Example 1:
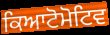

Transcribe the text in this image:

ਕਿਆਟੋਮੋਟਿਵ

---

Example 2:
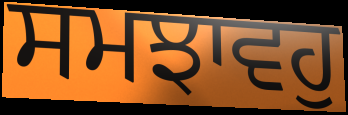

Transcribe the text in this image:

ਸਮਝਾਵਹੁ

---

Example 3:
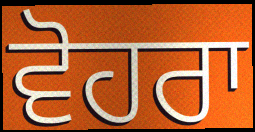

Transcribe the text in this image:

ਵੋਹਰਾ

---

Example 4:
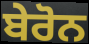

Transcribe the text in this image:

ਬੇਰੋਨ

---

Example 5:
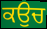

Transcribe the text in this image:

ਕਉਚ